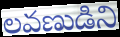
లవణుడిని